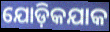
ଯୋଡ଼ିକଯାକ